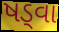
ષડ્વા